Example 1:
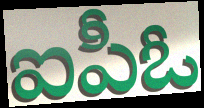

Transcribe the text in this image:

ఐపీఓ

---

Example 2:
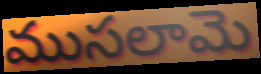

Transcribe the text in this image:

ముసలామె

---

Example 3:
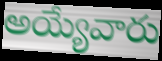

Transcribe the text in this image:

అయ్యేవారు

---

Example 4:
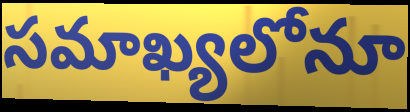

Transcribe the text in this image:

సమాఖ్యలోనూ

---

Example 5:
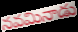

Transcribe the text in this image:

నవమినాడు